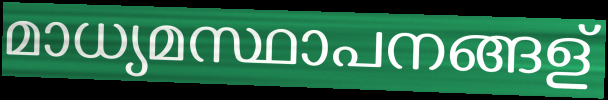
മാധ്യമസ്ഥാപനങ്ങള്